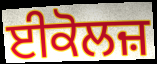
ਈਕੋਲਜ਼